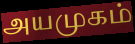
அயமுகம்